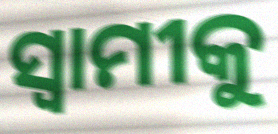
ସ୍ୱାମୀକୁ